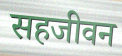
सहजीवन